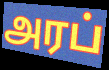
அரப்